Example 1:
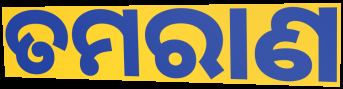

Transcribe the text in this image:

ତମରାଣ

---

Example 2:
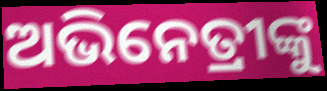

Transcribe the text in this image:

ଅଭିନେତ୍ରୀଙ୍କୁ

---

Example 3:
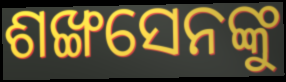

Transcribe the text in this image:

ଶଙ୍ଖସେନଙ୍କୁ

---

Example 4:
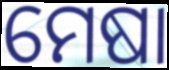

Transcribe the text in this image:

ମେଷା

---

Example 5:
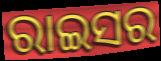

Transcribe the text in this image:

ରାଇସର